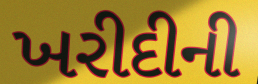
ખરીદીની